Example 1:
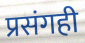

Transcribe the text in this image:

प्रसंगही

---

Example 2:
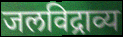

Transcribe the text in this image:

जलविद्राव्य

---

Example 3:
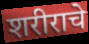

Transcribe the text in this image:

शरीराचे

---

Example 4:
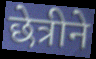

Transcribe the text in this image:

छेत्रीने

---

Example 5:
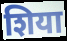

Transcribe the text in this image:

शिया